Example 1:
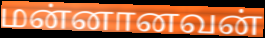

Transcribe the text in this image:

மன்னானவன்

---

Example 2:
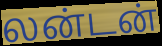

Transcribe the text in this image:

லன்டன்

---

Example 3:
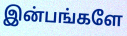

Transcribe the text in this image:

இன்பங்களே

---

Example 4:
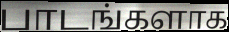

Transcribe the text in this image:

பாடங்களாக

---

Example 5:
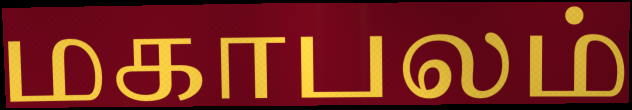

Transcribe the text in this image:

மகாபலம்